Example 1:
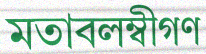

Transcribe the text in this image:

মতাবলম্বীগণ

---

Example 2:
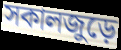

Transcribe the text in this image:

সকালজুড়ে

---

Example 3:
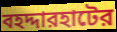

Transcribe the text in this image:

বহদ্দারহাটের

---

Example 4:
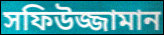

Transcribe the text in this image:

সফিউজ্জামান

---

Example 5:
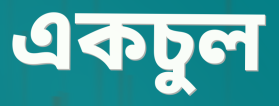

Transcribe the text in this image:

একচুল